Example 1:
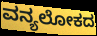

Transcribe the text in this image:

ವನ್ಯಲೋಕದ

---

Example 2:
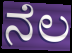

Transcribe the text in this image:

ನೆಲ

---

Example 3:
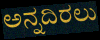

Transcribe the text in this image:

ಅನ್ನದಿರಲು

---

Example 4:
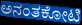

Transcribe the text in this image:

ಅನಂತಕೋಟಿ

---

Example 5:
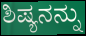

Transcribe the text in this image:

ಶಿಷ್ಯನನ್ನು